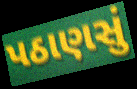
પઠાણસું